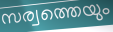
സര്വത്തെയും